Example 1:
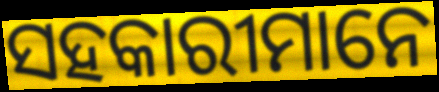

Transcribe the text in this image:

ସହକାରୀମାନେ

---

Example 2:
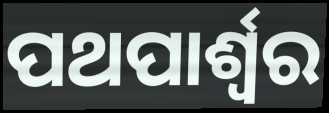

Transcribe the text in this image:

ପଥପାର୍ଶ୍ଵର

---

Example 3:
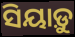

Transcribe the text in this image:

ସିୟାଡ଼ୁ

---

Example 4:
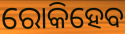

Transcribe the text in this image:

ରୋକିହେବ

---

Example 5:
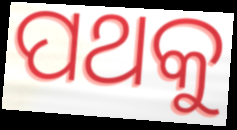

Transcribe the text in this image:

ପଥକୁ